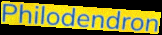
Philodendron